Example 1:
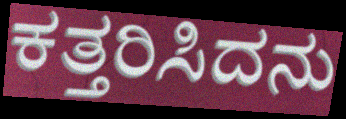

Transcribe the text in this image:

ಕತ್ತರಿಸಿದನು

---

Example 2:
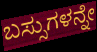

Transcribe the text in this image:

ಬಸ್ಸುಗಳನ್ನೇ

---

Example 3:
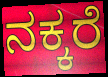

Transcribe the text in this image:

ನಕ್ಕರೆ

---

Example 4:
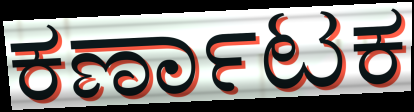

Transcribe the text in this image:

ಕರ್ಣಾಟಕ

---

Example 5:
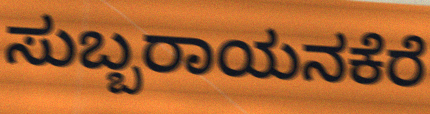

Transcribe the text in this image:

ಸುಬ್ಬರಾಯನಕೆರೆ